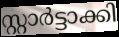
സ്റ്റാർട്ടാക്കി